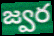
జ్వర